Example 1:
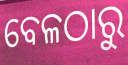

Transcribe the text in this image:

ବେଳଠାରୁ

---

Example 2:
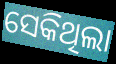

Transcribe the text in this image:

ସେକିଥିଲା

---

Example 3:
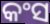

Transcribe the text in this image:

କଂସ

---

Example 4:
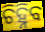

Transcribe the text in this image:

ଚିହ୍ନିବ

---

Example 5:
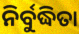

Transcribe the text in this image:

ନିର୍ବୁଦ୍ଧିତା